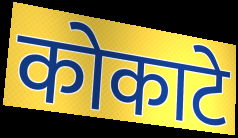
कोकाटे